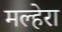
मल्हेरा